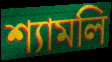
শ্যামলি